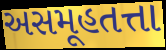
અસમૂહતત્તા